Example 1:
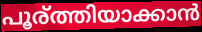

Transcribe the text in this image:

പൂര്ത്തിയാക്കാൻ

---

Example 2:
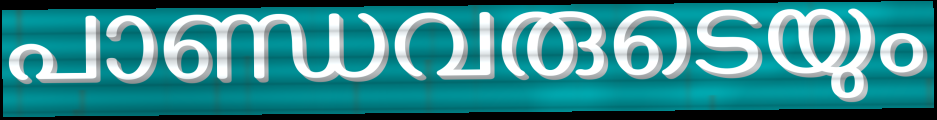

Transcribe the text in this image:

പാണ്ഡവരുടെയും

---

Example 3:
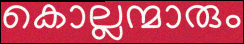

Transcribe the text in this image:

കൊല്ലന്മാരും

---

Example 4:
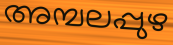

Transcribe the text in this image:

അമ്പലപ്പുഴ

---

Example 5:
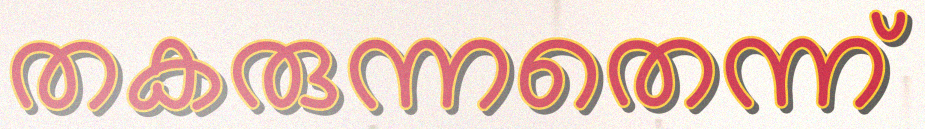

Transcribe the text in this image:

തകരുന്നതെന്ന്